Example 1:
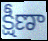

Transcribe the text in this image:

క్షీణా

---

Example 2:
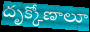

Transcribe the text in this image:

దృక్కోణాలూ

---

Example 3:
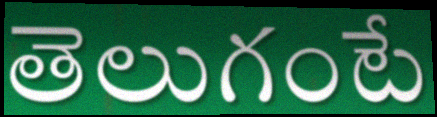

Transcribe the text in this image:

తెలుగంటే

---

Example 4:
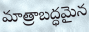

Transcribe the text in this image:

మాత్రాబద్ధమైన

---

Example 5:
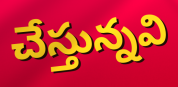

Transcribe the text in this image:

చేస్తున్నవి